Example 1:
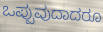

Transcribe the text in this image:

ಒಪ್ಪುವುದಾದರೂ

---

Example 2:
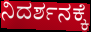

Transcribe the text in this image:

ನಿದರ್ಶನಕ್ಕೆ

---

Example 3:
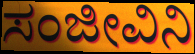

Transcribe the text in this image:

ಸಂಜೀವಿನಿ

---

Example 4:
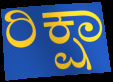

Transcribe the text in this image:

ರಿಕ್ಷಾ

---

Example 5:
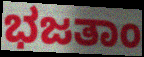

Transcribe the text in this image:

ಭಜತಾಂ